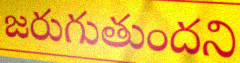
జరుగుతుందని